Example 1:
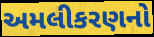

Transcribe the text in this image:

અમલીકરણનો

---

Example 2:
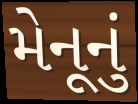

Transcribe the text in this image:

મેનૂનું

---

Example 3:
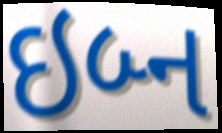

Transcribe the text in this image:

ઇબ્ન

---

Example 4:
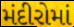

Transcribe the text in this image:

મંદીરોમાં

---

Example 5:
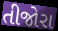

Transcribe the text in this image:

તીજોરા